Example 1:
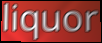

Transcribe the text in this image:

liquor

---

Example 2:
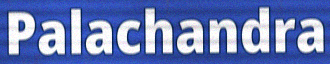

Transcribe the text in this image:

Palachandra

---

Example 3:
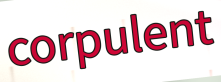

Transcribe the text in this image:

corpulent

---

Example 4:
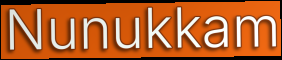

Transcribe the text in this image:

Nunukkam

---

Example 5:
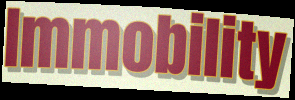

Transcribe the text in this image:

Immobility